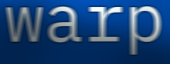
warp